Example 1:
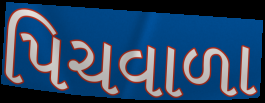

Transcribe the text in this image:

પિચવાળા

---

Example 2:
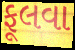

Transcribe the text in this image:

ફૂલવા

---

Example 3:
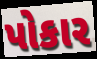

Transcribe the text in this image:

પોકાર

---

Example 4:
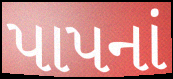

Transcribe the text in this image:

પાપનાં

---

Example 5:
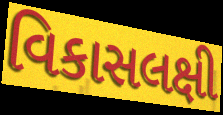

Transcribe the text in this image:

વિકાસલક્ષી